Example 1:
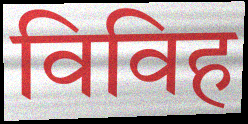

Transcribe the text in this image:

विविह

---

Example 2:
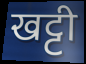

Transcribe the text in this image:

खट्टी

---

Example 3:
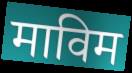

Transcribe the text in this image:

माविम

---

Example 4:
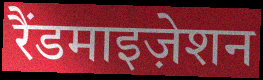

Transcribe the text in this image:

रैंडमाइज़ेशन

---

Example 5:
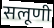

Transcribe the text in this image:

सलूणी